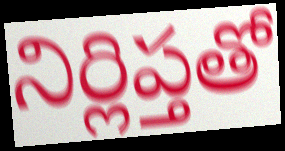
నిర్లిప్తతో